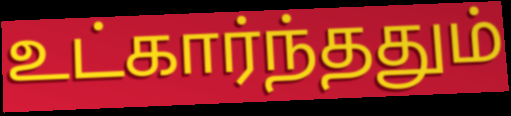
உட்கார்ந்ததும்